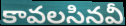
కావలసినవీ